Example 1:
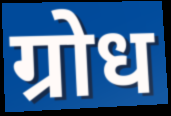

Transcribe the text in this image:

ग्रोध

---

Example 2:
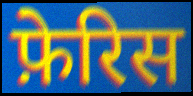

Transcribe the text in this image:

फ़ेरिस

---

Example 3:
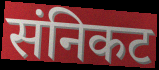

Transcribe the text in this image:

संनिकट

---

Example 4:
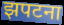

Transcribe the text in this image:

झपटना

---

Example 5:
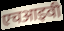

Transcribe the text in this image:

एचआइवी